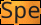
Spe